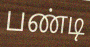
பண்டி